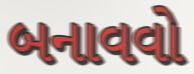
બનાવવો